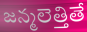
జన్మలెత్తితే